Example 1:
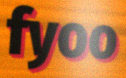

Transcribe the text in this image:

fyoo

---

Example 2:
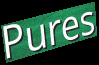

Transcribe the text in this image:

Pures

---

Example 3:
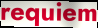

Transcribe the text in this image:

requiem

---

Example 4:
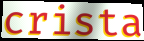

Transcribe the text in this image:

crista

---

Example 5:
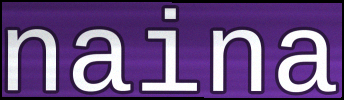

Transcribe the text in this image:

naina